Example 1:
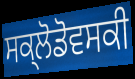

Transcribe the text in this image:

ਸਕ੍ਲੋਡੋਵਸਕੀ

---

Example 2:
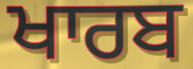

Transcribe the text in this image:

ਖਾਰਬ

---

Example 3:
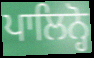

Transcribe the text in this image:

ਪਾਲਿਨ੍ਹੋ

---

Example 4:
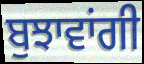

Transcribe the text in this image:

ਬੁਝਾਵਾਂਗੀ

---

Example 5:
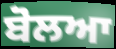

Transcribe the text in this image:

ਬੋਲਆ